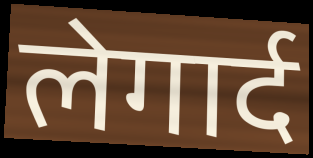
लेगार्द